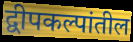
द्वीपकल्पांतील